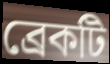
ব্রেকটি